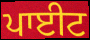
ਪਾਈਟ